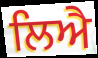
ਲਿਐ